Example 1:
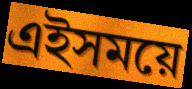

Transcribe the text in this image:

এইসময়ে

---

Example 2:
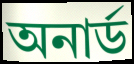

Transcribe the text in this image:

অনার্ড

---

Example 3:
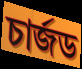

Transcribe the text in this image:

চার্জড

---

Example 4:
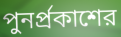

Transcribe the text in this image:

পুনর্প্রকাশের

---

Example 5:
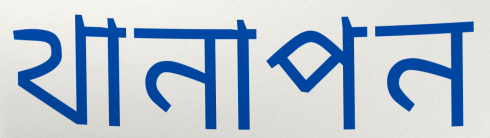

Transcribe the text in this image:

থানাপন